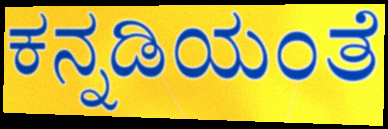
ಕನ್ನಡಿಯಂತೆ